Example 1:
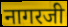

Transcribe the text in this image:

नागरजी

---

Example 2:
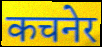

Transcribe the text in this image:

कचनेर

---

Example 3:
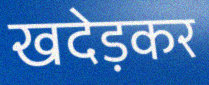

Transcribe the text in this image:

खदेड़कर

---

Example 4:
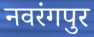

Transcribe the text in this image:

नवरंगपुर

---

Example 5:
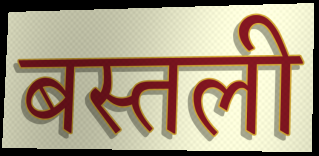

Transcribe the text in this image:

बस्तली